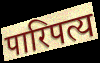
पारिपत्य